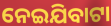
ନେଇଯିବାଟା